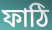
ফাঠি